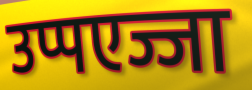
उप्पएज्जा